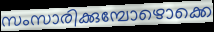
സംസാരിക്കുമ്പോഴൊക്കെ